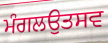
ਮੰਗਲਉਤਸਵ